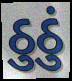
ઠુઠું